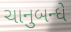
ચાનુબન્ધે